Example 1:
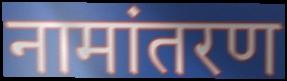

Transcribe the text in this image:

नामांतरण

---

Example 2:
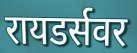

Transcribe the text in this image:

रायडर्सवर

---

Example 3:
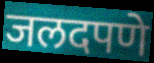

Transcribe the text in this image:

जलदपणे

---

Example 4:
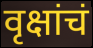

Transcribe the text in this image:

वृक्षांचं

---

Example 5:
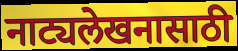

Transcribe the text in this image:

नाट्यलेखनासाठी